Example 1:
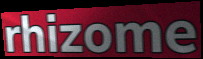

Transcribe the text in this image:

rhizome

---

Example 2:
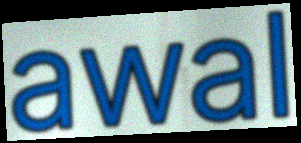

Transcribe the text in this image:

awal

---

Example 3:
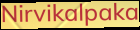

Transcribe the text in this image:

Nirvikalpaka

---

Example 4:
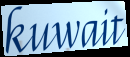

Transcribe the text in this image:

kuwait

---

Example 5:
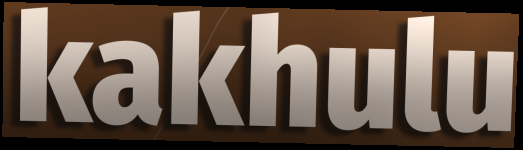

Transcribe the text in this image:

kakhulu